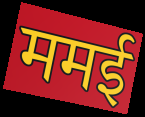
ममई